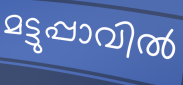
മട്ടുപ്പാവിൽ